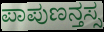
ಪಾಪುಣನ್ತಸ್ಸ